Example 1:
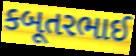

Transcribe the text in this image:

કબૂતરભાઈ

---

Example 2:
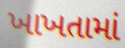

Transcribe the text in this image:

ખાખતામાં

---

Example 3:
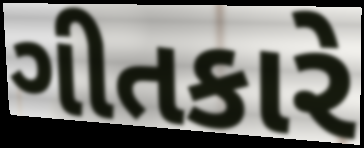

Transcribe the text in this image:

ગીતકારે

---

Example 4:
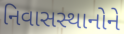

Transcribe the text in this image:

નિવાસસ્થાનોને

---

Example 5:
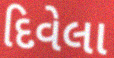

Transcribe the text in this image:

દિવેલા